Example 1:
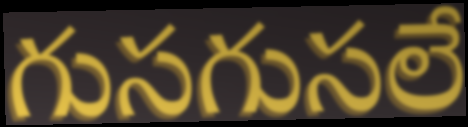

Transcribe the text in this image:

గుసగుసలే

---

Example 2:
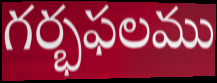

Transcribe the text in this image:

గర్భఫలము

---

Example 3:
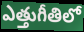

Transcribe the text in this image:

ఎత్తుగీతిలో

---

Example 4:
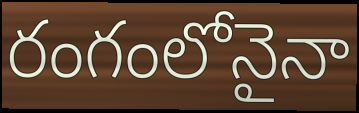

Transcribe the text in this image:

రంగంలోనైనా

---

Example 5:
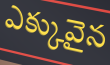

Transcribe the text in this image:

ఎక్కువైన